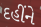
દહીંને